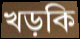
খড়কি